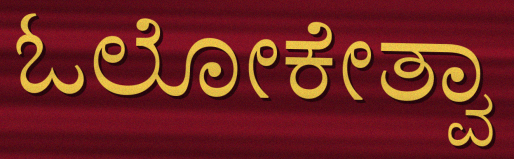
ಓಲೋಕೇತ್ವಾ